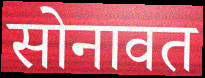
सोनावत